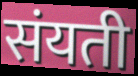
संयती